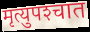
मृत्युपश्चात